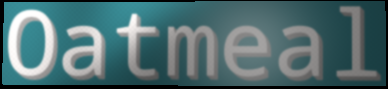
Oatmeal